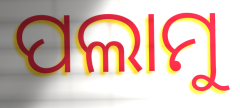
ପଲାମୁ